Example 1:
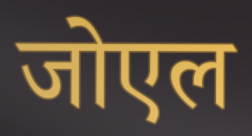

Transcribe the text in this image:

जोएल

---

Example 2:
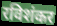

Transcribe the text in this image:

रविशंकर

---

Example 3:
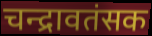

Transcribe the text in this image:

चन्द्रावतंसक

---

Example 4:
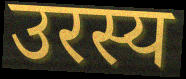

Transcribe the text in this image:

उरस्य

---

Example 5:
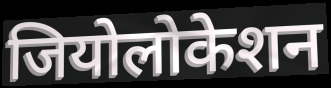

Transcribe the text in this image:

जियोलोकेशन